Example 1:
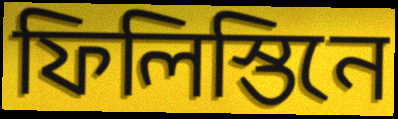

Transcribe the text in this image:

ফিলিস্তিনে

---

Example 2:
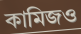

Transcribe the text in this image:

কামিজও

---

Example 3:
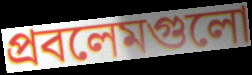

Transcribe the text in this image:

প্রবলেমগুলো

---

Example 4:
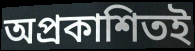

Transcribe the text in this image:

অপ্রকাশিতই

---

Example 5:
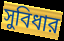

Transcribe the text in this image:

সুবিধার